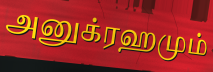
அனுக்ரஹமும்